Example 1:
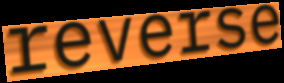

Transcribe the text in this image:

reverse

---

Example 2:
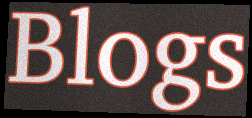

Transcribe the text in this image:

Blogs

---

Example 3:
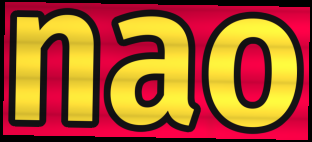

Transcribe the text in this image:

nao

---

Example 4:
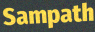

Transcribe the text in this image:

Sampath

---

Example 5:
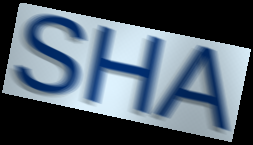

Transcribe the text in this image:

SHA